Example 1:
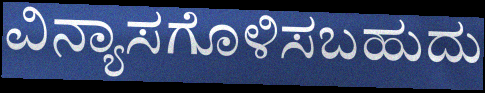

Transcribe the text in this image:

ವಿನ್ಯಾಸಗೊಳಿಸಬಹುದು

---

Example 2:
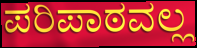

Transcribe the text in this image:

ಪರಿಪಾಠವಲ್ಲ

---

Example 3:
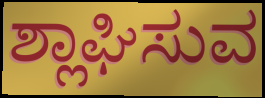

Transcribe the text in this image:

ಶ್ಲಾಘಿಸುವ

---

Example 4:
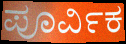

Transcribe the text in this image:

ಪೂರ್ವಿಕ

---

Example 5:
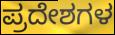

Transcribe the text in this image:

ಪ್ರದೇಶಗಳ